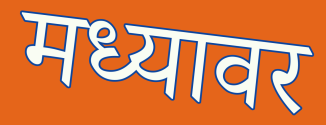
मध्यावर